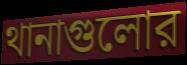
থানাগুলোর